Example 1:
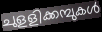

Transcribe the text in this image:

ചുളളിക്കമ്പുകൾ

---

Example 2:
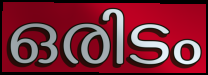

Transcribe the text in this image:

ഒരിടം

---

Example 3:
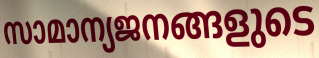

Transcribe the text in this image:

സാമാന്യജനങ്ങളുടെ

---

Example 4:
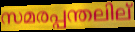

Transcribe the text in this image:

സമരപ്പന്തലില്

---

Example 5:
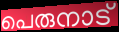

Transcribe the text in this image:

പെരുനാട്